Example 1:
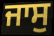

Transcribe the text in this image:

ਜਾਸੁ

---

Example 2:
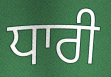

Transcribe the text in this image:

ਧਾਰੀ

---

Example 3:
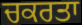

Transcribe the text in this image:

ਚਕਰਤਾ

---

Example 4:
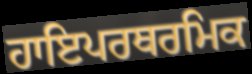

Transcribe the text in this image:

ਹਾਇਪਰਥਰਮਿਕ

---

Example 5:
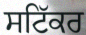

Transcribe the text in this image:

ਸਟਿੱਕਰ